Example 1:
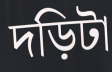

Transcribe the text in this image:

দড়িটা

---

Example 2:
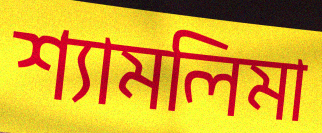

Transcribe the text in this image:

শ্যামলিমা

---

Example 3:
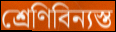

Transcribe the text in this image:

শ্রেণিবিন্যস্ত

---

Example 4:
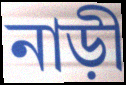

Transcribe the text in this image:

নাড়ী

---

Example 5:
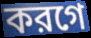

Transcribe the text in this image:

করগে